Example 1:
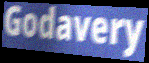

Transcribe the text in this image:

Godavery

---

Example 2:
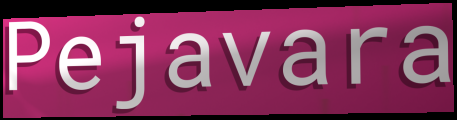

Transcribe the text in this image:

Pejavara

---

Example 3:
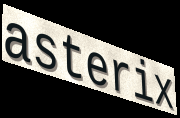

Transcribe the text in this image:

asterix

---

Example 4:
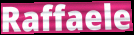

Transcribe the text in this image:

Raffaele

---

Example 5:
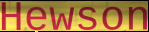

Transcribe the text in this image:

Hewson